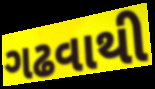
ગઢવાથી